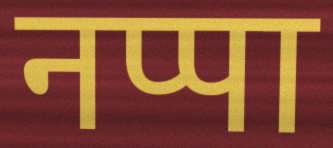
नप्पा